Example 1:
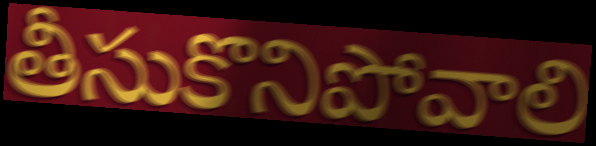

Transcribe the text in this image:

తీసుకొనిపోవాలి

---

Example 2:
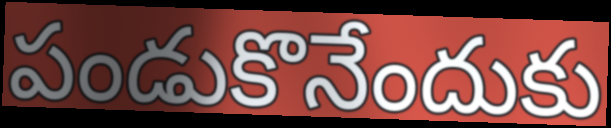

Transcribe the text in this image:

పండుకొనేందుకు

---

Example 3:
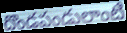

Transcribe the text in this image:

దొండపండులాంటి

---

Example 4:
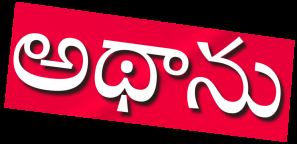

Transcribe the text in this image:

అథాను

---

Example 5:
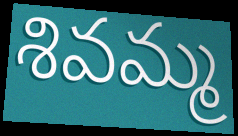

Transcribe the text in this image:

శివమ్మ